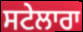
ਸਟੇਲਾਰਾ